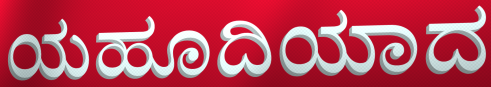
ಯಹೂದಿಯಾದ